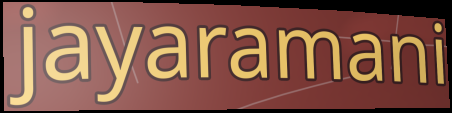
jayaramani